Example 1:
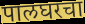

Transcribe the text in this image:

पालघरचा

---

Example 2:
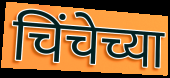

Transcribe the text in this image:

चिंचेच्या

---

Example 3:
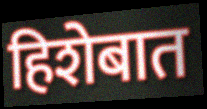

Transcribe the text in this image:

हिशेबात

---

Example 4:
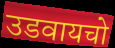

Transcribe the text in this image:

उडवायचो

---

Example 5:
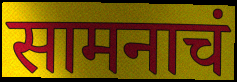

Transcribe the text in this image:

सामनाचं